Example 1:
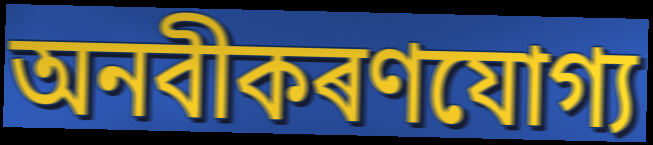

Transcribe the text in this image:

অনবীকৰণযোগ্য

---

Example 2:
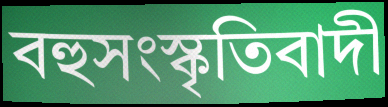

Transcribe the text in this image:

বহুসংস্কৃতিবাদী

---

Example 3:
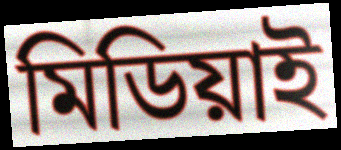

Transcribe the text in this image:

মিডিয়াই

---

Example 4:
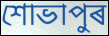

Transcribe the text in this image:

শোভাপুৰ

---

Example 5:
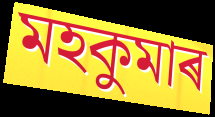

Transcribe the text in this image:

মহকুমাৰ